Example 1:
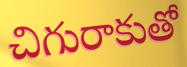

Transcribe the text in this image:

చిగురాకుతో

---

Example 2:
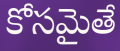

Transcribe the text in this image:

కోసమైతే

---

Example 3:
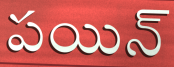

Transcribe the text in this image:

పయిన్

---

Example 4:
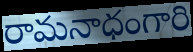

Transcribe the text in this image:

రామనాధంగారి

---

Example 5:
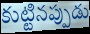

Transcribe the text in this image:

కుట్టినప్పుడు